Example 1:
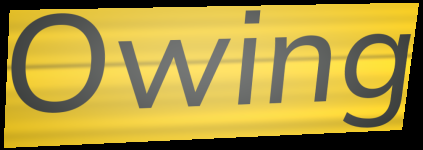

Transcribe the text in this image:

Owing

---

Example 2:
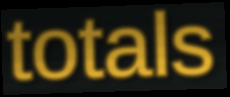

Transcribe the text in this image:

totals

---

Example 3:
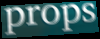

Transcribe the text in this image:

props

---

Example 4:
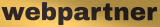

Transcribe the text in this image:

webpartner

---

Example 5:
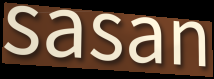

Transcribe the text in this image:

sasan